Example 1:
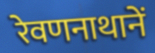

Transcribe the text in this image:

रेवणनाथानें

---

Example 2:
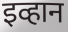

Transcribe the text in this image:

इव्हान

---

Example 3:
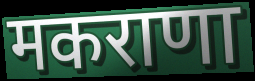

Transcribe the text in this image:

मकराणा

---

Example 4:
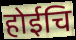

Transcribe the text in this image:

होईचि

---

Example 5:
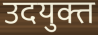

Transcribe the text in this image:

उदयुक्त